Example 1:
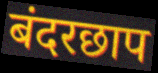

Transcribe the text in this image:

बंदरछाप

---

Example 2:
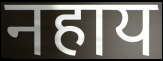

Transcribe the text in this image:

नहाय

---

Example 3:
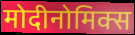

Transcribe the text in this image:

मोदीनोमिक्स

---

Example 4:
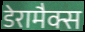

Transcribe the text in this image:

डेरामैक्स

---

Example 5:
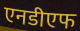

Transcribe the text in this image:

एनडीएफ